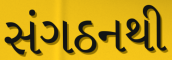
સંગઠનથી